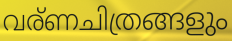
വര്ണചിത്രങ്ങളും